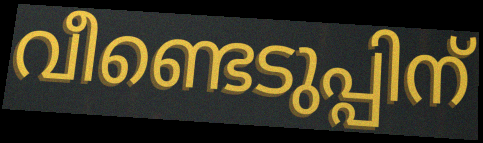
വീണ്ടെടുപ്പിന്